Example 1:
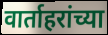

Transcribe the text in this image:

वार्ताहरांच्या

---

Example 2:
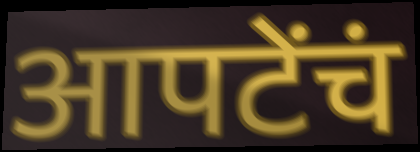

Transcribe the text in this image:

आपटेंचं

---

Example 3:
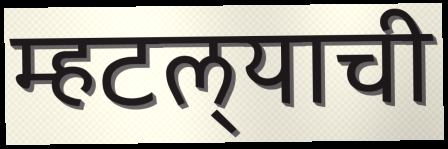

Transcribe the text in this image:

म्हटल्याची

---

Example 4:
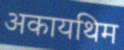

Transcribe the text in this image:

अकायथिम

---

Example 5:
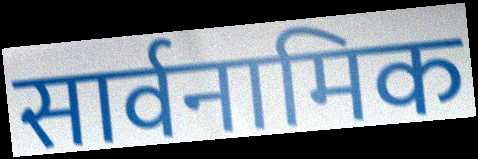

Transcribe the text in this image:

सार्वनामिक